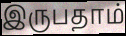
இருபதாம்